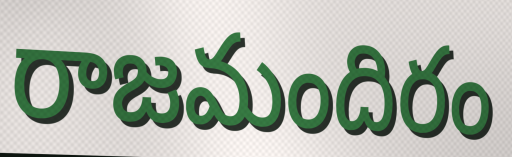
రాజమందిరం